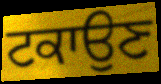
ਟਕਾਉਣ